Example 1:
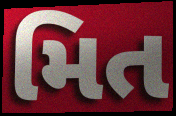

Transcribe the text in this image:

મિત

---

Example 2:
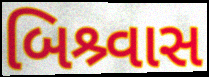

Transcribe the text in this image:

બિશ્ર્વાસ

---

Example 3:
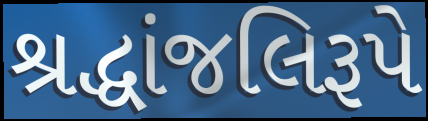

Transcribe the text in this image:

શ્રદ્ધાંજલિરૂપે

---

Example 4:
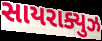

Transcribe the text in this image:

સાયરાક્યુઝ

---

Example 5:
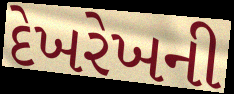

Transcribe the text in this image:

દેખરેખની